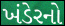
ખંડેરનો